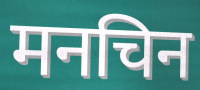
मनचिन